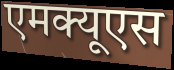
एमक्यूएस